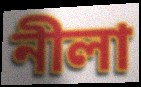
নীলা